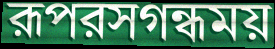
রূপরসগন্ধময়